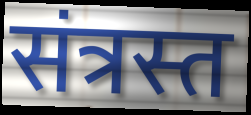
संत्रस्त